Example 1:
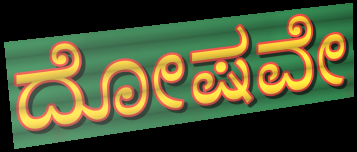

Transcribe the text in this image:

ದೋಷವೇ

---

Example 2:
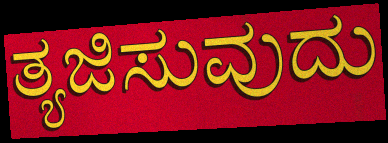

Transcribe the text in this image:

ತ್ಯಜಿಸುವುದು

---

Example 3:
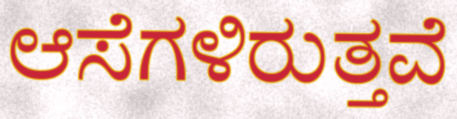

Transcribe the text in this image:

ಆಸೆಗಳಿರುತ್ತವೆ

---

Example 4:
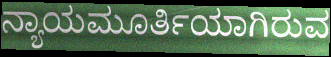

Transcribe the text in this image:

ನ್ಯಾಯಮೂರ್ತಿಯಾಗಿರುವ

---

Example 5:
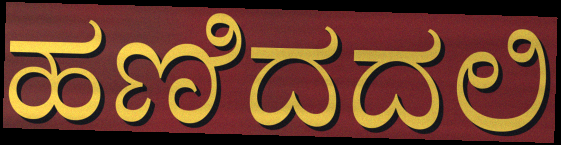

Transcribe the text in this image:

ಹಣಿದದಲಿ